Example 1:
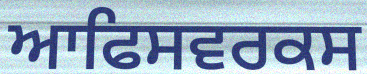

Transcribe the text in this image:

ਆਫਿਸਵਰਕਸ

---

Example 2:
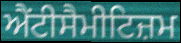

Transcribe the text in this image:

ਐਂਟੀਸੈਮੀਟਿਜ਼ਮ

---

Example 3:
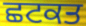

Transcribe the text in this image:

ਛਟਕਤ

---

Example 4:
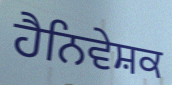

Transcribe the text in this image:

ਹੈਨਿਵੇਸ਼ਕ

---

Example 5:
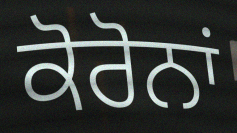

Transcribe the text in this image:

ਕੋਰੋਨਾਂ